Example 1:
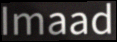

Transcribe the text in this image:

Imaad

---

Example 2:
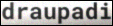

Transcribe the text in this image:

draupadi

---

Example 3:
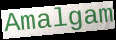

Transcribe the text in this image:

Amalgam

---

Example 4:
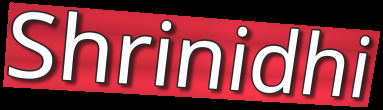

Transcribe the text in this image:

Shrinidhi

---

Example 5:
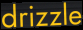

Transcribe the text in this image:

drizzle